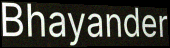
Bhayander